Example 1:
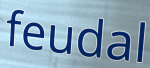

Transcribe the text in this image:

feudal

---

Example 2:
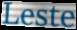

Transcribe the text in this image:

Leste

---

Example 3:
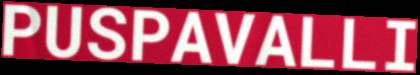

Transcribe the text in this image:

PUSPAVALLI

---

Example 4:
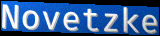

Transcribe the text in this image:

Novetzke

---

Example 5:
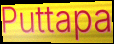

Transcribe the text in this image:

Puttapa